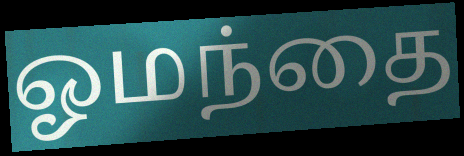
ஓமந்தை